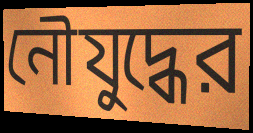
নৌযুদ্ধের